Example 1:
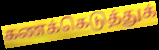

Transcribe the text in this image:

கணக்கெடுத்துக்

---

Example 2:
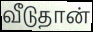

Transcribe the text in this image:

வீடுதான்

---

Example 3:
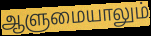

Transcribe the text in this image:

ஆளுமையாலும்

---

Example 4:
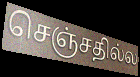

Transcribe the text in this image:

செஞ்சதில்ல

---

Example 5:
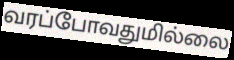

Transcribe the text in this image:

வரப்போவதுமில்லை